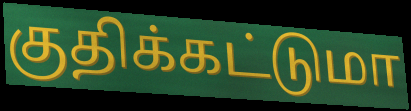
குதிக்கட்டுமா